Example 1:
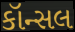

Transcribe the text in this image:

કૉન્સલ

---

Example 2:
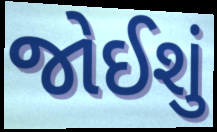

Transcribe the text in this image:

જોઈશું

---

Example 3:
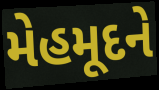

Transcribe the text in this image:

મેહમૂદને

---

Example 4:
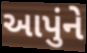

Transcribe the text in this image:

આપુંને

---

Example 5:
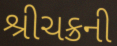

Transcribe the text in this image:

શ્રીચક્રની